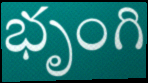
భృంగి